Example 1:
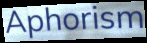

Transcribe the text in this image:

Aphorism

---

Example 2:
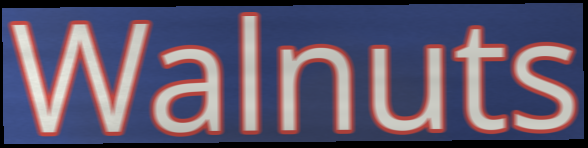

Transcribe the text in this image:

Walnuts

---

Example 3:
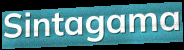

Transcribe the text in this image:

Sintagama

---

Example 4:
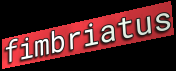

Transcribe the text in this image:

fimbriatus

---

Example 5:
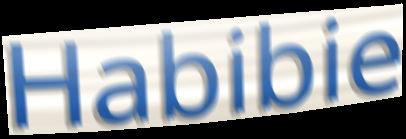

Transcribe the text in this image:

Habibie